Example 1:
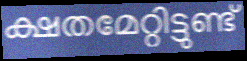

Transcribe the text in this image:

ക്ഷതമേറ്റിട്ടുണ്ട്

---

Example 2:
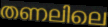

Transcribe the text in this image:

തണലിലെ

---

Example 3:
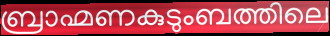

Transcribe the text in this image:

ബ്രാഹ്മണകുടുംബത്തിലെ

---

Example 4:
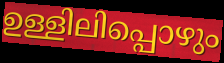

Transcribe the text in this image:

ഉള്ളിലിപ്പൊഴും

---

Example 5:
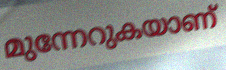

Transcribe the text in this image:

മുന്നേറുകയാണ്